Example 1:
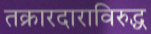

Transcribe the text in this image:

तक्रारदाराविरुद्ध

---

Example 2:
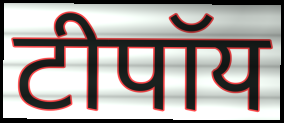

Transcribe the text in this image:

टीपॉय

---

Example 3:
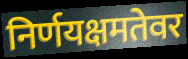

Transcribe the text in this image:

निर्णयक्षमतेवर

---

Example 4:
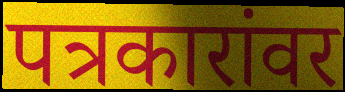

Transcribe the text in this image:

पत्रकारांवर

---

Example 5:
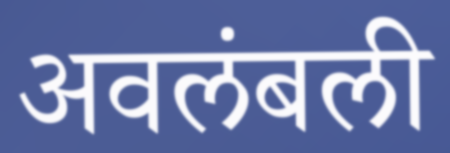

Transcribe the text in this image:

अवलंबली